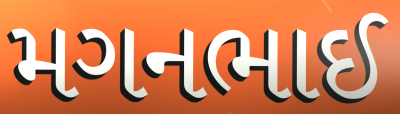
મગનભાઈ